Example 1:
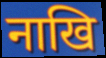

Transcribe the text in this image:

नाखि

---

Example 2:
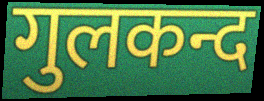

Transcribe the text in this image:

गुलकन्द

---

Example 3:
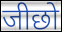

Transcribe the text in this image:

जीछो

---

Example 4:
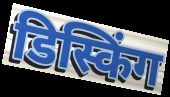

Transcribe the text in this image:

डिस्किंग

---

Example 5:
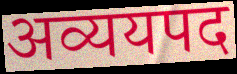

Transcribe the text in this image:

अव्ययपद